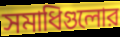
সমাধিগুলোর